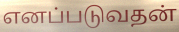
எனப்படுவதன்